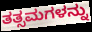
ತತ್ಸಮಗಳನ್ನು